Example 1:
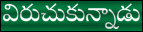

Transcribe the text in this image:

విరుచుకున్నాడు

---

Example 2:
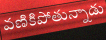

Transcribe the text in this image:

వణికిపోతున్నాడు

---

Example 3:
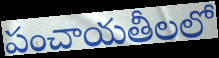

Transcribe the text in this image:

పంచాయతీలలో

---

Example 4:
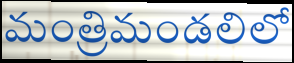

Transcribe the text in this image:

మంత్రిమండలిలో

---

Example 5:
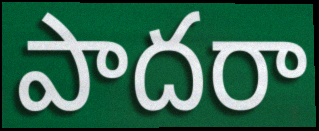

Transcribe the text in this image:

పాదరా